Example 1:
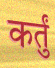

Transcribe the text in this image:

कर्तुं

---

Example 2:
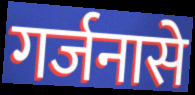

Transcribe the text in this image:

गर्जनासे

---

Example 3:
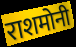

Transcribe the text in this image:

राशमोनी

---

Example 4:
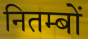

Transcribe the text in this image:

नितम्बों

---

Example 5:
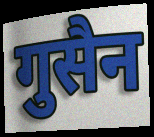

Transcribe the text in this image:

गुसैन